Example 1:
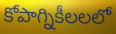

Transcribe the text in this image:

కోపాగ్నికీలలలో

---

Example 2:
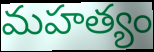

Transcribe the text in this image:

మహత్యం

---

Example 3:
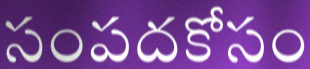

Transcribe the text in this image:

సంపదకోసం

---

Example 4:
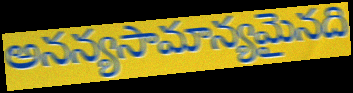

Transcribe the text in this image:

అనన్యసామాన్యమైనది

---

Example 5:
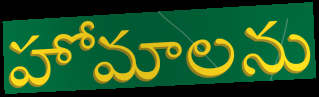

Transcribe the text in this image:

హోమాలను